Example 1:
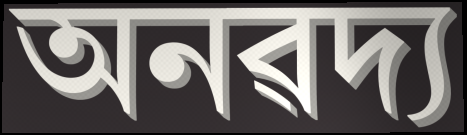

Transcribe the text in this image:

অনৱদ্য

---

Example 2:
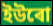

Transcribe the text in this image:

ইউৰো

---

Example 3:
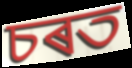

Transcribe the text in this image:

চৰত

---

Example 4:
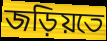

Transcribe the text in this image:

জড়িয়তে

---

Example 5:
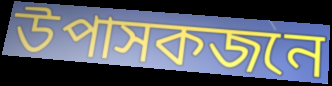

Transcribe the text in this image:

উপাসকজনে